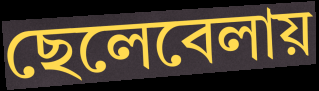
ছেলেবেলায়